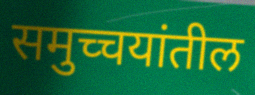
समुच्चयांतील